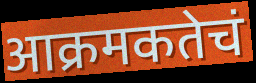
आक्रमकतेचं